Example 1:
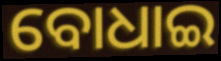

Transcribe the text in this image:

ବୋଧାଇ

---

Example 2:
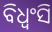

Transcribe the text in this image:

ବିଧ୍ୱଂସି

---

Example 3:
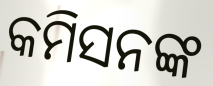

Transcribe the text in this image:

କମିସନଙ୍କ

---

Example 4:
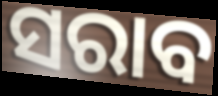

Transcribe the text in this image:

ସରାବ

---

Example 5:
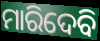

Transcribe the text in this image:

ମାରିଦେବି